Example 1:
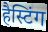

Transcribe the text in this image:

हैस्टिंग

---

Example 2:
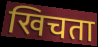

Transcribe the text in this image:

खिचता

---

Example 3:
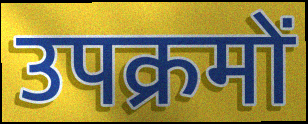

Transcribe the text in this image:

उपक्रमों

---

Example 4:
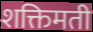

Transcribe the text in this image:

शक्तिमती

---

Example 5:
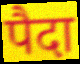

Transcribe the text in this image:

पैदा